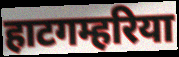
हाटगम्हरिया